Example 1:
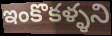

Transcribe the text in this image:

ఇంకొకళ్ళని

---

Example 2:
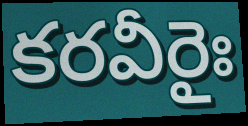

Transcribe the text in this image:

కరవీరైః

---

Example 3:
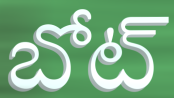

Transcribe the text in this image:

బోట్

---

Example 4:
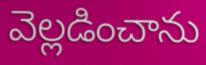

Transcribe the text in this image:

వెల్లడించాను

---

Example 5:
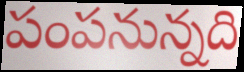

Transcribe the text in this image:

పంపనున్నది